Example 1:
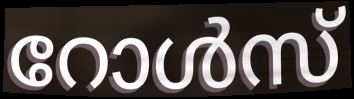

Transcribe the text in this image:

റോൾസ്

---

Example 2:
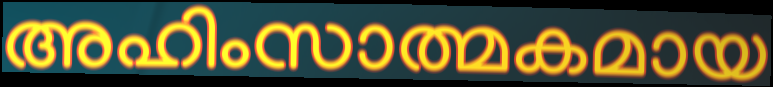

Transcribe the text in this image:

അഹിംസാത്മകമായ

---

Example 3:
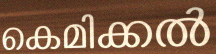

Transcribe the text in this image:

കെമിക്കൽ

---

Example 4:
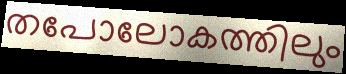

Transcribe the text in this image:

തപോലോകത്തിലും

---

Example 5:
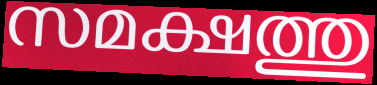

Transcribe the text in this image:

സമക്ഷത്തു